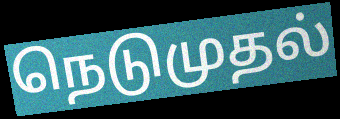
நெடுமுதல்